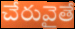
చేరువైతే